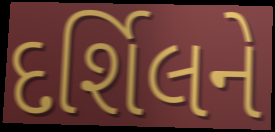
દર્શિલને